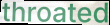
throated